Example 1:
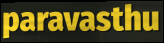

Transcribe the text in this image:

paravasthu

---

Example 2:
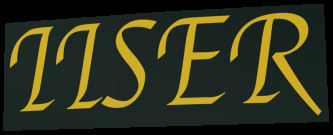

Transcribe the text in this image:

IISER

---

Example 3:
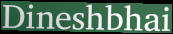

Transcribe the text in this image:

Dineshbhai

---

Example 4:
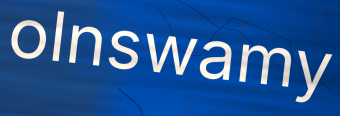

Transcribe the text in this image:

olnswamy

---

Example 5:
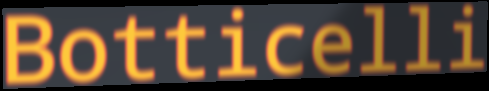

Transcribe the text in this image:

Botticelli